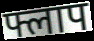
फ्लाप